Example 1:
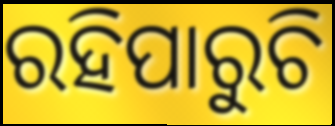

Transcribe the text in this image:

ରହିପାରୁଚି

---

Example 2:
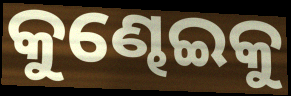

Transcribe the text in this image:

କୁଣ୍ଢେଇକୁ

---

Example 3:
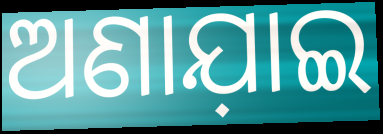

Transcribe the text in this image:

ଅଣାଯ଼ାଇ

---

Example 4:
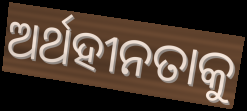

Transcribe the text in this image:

ଅର୍ଥହୀନତାକୁ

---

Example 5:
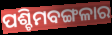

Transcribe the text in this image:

ପଶ୍ଚିମବଙ୍ଗଳାର